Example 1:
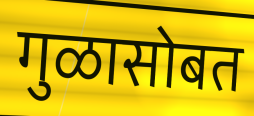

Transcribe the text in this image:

गुळासोबत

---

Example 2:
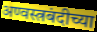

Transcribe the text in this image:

अण्वस्त्रबंदीच्या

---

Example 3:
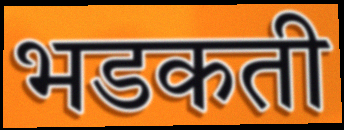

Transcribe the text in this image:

भडकती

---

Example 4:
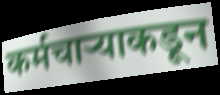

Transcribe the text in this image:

कर्मचाऱ्याकडून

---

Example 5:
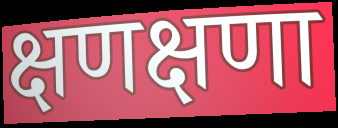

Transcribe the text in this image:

क्षणक्षणा